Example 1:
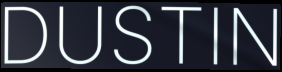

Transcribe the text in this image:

DUSTIN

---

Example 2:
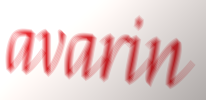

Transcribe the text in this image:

avarin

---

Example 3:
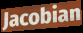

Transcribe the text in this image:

Jacobian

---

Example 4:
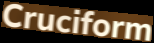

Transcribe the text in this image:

Cruciform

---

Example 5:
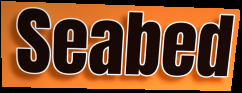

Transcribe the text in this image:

Seabed